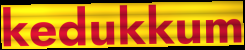
kedukkum